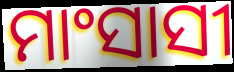
ମାଂସାସୀ